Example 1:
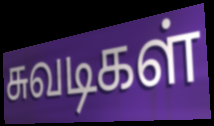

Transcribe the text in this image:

சுவடிகள்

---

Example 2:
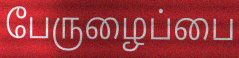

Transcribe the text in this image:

பேருழைப்பை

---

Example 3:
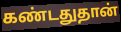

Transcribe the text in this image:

கண்டதுதான்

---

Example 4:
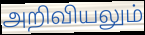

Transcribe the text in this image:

அறிவியலும்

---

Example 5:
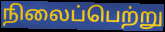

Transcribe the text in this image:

நிலைப்பெற்று